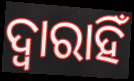
ଦ୍ୱାରାହିଁ